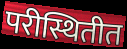
परीस्थितीत